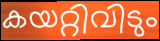
കയറ്റിവിടും